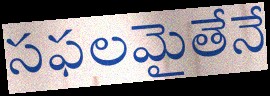
సఫలమైతేనే